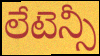
లేటెన్సీ